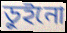
ডুইনো